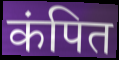
कंपित